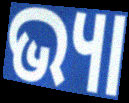
ଭ୍ୟା